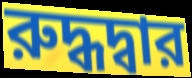
রুদ্ধদ্বার